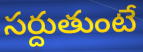
సర్దుతుంటే